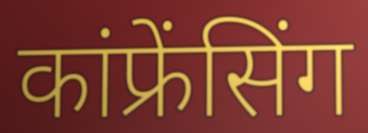
कांफ्रेंसिंग